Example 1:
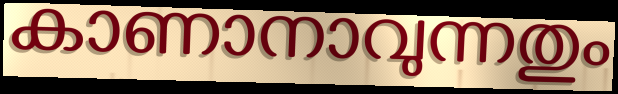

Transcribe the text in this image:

കാണാനാവുന്നതും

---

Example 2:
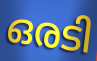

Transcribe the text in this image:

ഒരടി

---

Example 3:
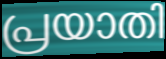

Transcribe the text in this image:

പ്രയാതി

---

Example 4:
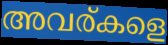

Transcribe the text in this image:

അവര്കളെ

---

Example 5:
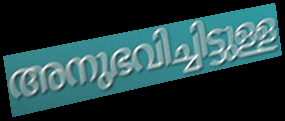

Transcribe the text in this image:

അനുഭവിച്ചിട്ടുള്ള